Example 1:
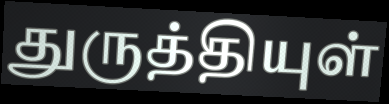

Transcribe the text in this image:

துருத்தியுள்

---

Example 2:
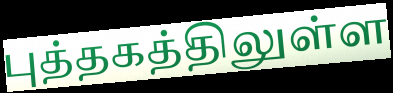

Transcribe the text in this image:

புத்தகத்திலுள்ள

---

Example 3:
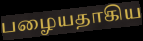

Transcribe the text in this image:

பழையதாகிய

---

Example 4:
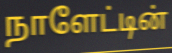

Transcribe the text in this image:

நாளேட்டின்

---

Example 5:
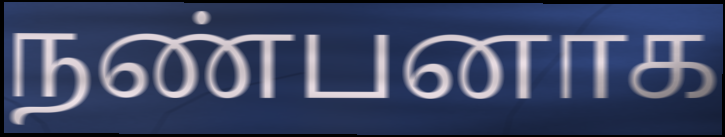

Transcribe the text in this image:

நண்பனாக